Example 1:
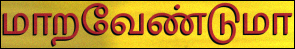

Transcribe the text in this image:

மாறவேண்டுமா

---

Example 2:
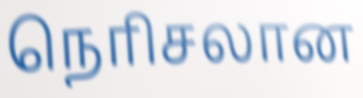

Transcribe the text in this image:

நெரிசலான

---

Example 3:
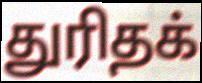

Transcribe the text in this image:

துரிதக்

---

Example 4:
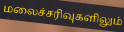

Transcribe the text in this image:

மலைச்சரிவுகளிலும்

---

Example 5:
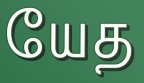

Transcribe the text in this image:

யேத